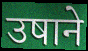
उषाने